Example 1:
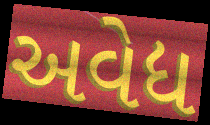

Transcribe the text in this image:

અવેદ્ય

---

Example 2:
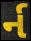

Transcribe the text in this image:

ર્ન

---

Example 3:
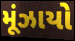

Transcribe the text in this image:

મૂંઝાયો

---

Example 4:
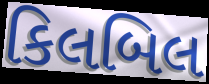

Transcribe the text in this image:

કિલબિલ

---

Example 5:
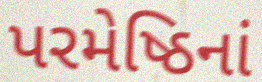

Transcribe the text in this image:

પરમેષ્ઠિનાં